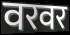
वरवर